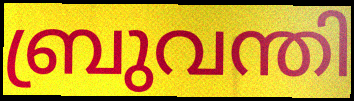
ബ്രുവന്തി